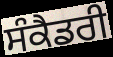
ਸੰਕੈਡਰੀ